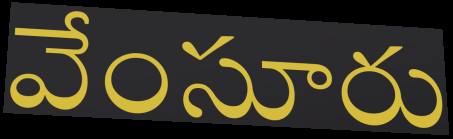
వేంసూరు